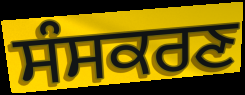
ਸੰਸਕਰਣ